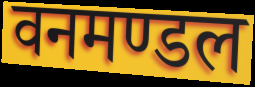
वनमण्डल